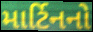
માર્ટિનનો